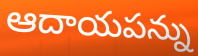
ఆదాయపన్ను